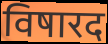
विषारद